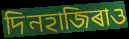
দিনহাজিৰাও